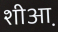
शीआ़